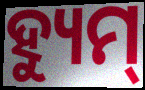
ହ୍ୟୁମ୍